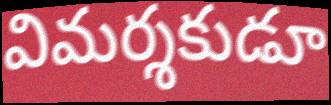
విమర్శకుడూ